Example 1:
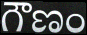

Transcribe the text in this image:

గౌణం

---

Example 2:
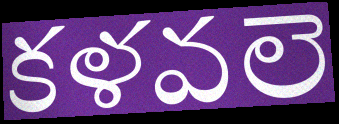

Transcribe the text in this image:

కళవలె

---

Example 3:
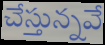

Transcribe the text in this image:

చేస్తున్నవే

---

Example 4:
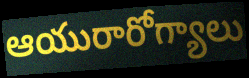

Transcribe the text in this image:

ఆయురారోగ్యాలు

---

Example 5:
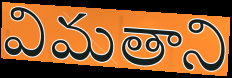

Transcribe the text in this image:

విమతాని